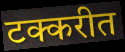
टक्करीत